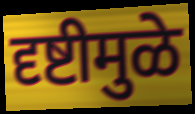
दृष्टीमुळे